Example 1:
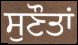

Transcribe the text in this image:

ਸੁਣੌਤਾਂ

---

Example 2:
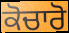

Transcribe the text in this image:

ਕੋਚਾਰੋ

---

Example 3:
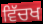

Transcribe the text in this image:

ਵਿੱਚਖ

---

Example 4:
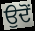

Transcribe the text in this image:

ਉਦੋੰ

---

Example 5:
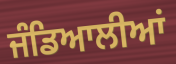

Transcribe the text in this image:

ਜੰਡਿਆਲੀਆਂ